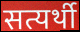
सत्यर्थी